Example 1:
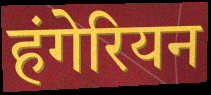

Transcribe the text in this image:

हंगेरियन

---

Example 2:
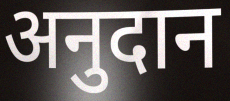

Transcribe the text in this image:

अनुदान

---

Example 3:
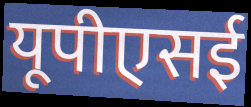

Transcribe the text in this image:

यूपीएसई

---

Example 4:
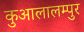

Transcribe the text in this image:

कुआलालम्पुर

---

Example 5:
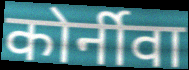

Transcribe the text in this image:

कोर्नीवा